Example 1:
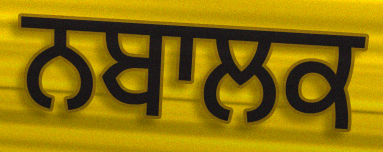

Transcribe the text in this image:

ਨਬਾਲਕ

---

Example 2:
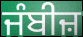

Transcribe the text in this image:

ਜੰਬੀਜ਼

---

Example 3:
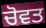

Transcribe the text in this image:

ਚੋਵਤ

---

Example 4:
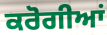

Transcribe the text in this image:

ਕਰੋਗੀਆਂ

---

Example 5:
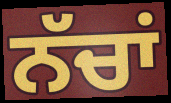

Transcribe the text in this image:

ਨੱਚਾਂ